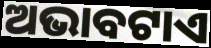
ଅଭାବଟାଏ